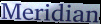
Meridian